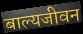
बाल्यजीवन